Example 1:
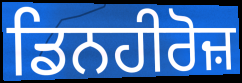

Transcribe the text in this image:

ਡਿਨਹੀਰੋਜ਼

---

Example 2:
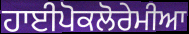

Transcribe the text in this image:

ਹਾਈਪੋਕਲੋਰੇਮੀਆ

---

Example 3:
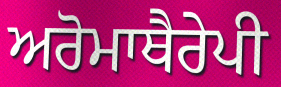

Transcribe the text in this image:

ਅਰੋਮਾਥੈਰੇਪੀ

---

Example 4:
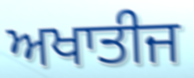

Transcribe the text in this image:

ਅਖਾਤੀਜ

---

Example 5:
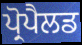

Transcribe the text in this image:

ਪ੍ਰੋਪੈਲਡ